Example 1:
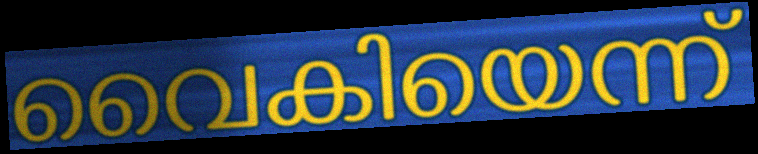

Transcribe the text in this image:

വൈകിയെന്ന്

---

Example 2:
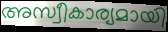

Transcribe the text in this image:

അസ്വീകാര്യമായി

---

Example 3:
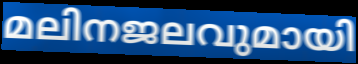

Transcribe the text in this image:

മലിനജലവുമായി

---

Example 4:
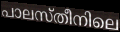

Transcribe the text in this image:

പാലസ്തീനിലെ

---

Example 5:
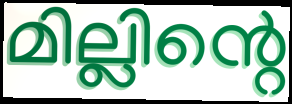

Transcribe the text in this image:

മില്ലിന്റെ